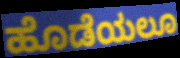
ಹೊಡೆಯಲೂ